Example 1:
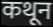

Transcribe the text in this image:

कथून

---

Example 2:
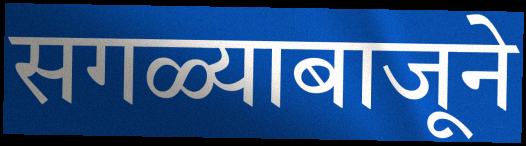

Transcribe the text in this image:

सगळ्याबाजूने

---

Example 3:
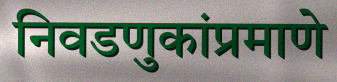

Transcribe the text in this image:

निवडणुकांप्रमाणे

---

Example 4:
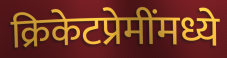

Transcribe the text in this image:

क्रिकेटप्रेमींमध्ये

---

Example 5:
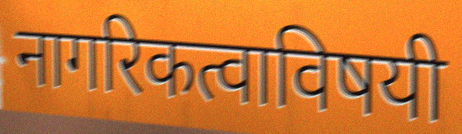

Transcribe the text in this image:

नागरिकत्वाविषयी